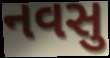
નવસુ